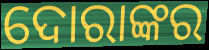
ଦୋରାଙ୍କର